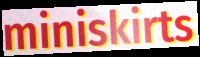
miniskirts